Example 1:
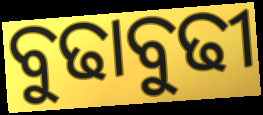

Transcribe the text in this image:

ବୁଢାବୁଢୀ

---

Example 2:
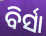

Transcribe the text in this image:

ବିର୍ସା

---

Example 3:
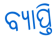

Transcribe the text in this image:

ବ୍ୟାପ୍ତି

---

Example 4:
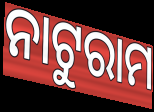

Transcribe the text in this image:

ନାଟୁରାମ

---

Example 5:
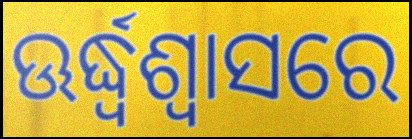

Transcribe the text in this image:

ଊର୍ଦ୍ଧ୍ୱଶ୍ୱାସରେ